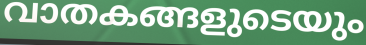
വാതകങ്ങളുടെയും